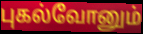
புகல்வோனும்